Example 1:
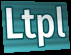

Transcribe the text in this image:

Ltpl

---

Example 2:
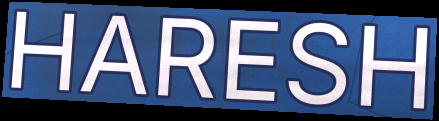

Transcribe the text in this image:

HARESH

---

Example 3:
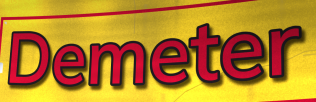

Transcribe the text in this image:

Demeter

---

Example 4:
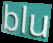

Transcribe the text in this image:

blu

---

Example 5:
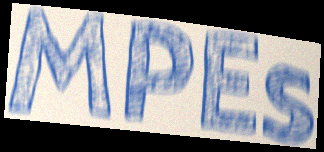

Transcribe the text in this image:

MPEs